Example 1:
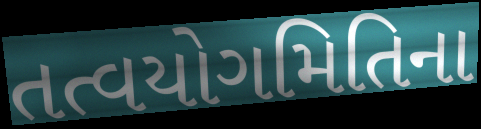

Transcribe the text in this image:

તત્વયોગમિતિના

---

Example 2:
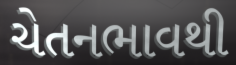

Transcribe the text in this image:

ચેતનભાવથી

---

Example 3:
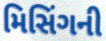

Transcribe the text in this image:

મિસિંગની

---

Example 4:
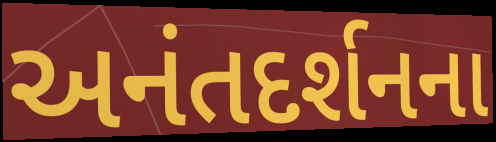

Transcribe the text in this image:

અનંતદર્શનના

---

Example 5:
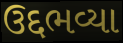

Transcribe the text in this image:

ઉદ્દભવ્યા